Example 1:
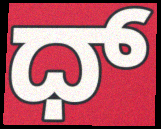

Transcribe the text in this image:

ಧ್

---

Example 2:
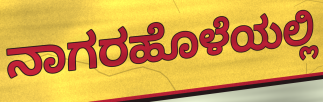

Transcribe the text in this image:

ನಾಗರಹೊಳೆಯಲ್ಲಿ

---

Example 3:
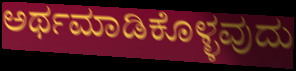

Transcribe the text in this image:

ಅರ್ಥಮಾಡಿಕೊಳ್ಳವುದು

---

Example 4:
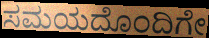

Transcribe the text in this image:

ಸಮಯದೊಂದಿಗೇ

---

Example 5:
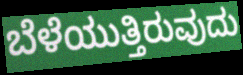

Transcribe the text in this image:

ಬೆಳೆಯುತ್ತಿರುವುದು